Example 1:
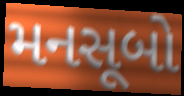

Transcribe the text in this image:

મનસૂબો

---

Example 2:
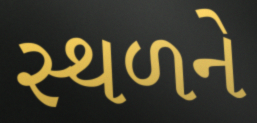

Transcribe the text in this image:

સ્‍થળને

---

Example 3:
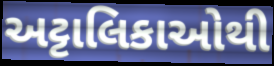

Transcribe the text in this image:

અટ્ટાલિકાઓથી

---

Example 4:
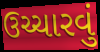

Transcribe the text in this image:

ઉચ્ચારવું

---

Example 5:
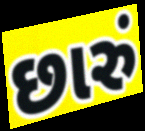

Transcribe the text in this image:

છારું